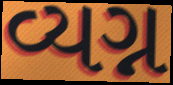
વ્યગ્ન